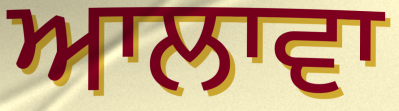
ਆਲਾਵਾ